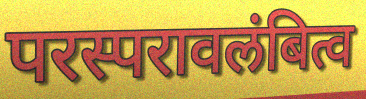
परस्परावलंबित्व